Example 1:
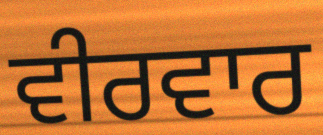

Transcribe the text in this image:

ਵੀਰਵਾਰ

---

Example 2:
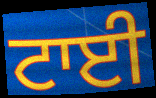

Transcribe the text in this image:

ਟਾਈ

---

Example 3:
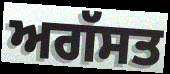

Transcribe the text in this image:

ਅਗੱਸਤ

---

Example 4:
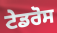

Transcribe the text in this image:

ਟੇਡਰੋਸ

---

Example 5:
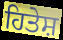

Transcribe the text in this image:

ਹਿਤੇਸ਼